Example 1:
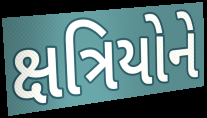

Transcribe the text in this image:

ક્ષત્રિયોને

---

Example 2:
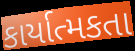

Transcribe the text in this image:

કાર્યાત્મકતા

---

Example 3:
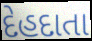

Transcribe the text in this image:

દેહદાતા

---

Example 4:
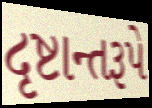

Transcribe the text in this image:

દૃષ્ટાન્તરૂપે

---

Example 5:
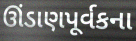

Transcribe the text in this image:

ઊંડાણપૂર્વકના